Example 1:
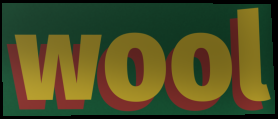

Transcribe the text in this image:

wool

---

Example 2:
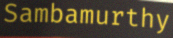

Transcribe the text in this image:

Sambamurthy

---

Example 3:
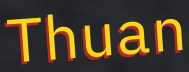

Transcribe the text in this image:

Thuan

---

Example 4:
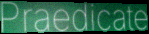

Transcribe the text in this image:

Praedicate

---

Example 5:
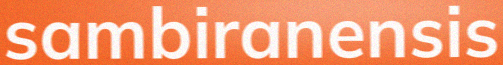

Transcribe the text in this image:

sambiranensis